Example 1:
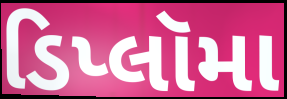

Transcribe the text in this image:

ડિપ્લૉમા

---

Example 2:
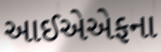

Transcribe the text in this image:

આઈએએફના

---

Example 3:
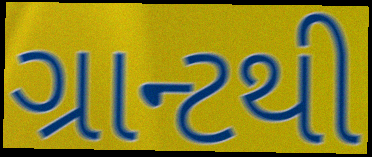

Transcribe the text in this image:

ગ્રાન્ટથી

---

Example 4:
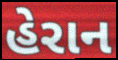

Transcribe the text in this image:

હેરાન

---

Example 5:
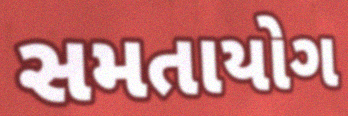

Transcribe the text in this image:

સમતાયોગ